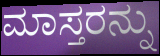
ಮಾಸ್ತರನ್ನು